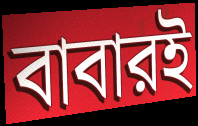
বাবারই